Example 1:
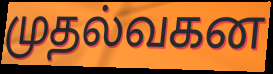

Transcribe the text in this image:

முதல்வகன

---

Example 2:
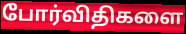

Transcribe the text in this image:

போர்விதிகளை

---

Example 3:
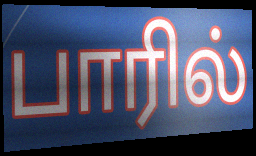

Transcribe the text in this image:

பாரில்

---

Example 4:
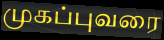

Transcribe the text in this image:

முகப்புவரை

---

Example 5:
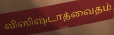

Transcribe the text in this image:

விஸிஷ்டாத்வைதம்